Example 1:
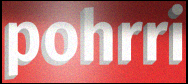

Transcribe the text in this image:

pohrri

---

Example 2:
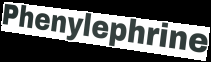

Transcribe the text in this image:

Phenylephrine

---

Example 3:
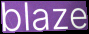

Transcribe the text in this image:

blaze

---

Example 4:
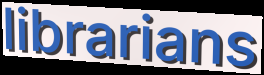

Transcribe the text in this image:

librarians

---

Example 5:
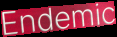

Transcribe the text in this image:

Endemic